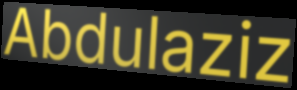
Abdulaziz